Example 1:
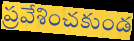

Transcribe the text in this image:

ప్రవేశించకుండ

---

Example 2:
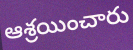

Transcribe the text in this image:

ఆశ్రయించారు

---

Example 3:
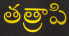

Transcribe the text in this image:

తత్రాపి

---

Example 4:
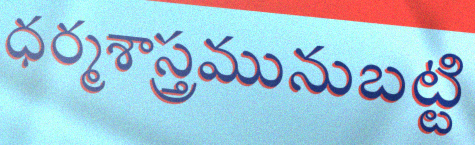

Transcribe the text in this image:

ధర్మశాస్త్రమునుబట్టి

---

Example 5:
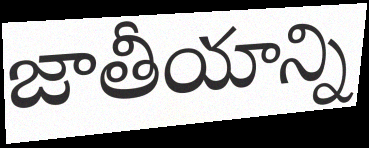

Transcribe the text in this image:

జాతీయాన్ని